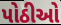
પોઠીઓ